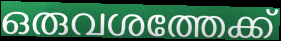
ഒരുവശത്തേക്ക്